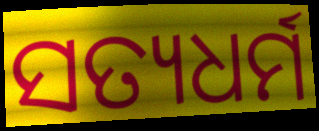
ସତ୍ୟଧର୍ମ